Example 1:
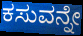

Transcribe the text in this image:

ಕಸುವನ್ನೇ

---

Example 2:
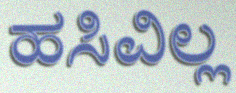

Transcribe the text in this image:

ಹಸಿವಿಲ್ಲ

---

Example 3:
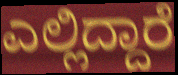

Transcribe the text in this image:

ಎಲ್ಲಿದ್ದಾರೆ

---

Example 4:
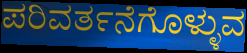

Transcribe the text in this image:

ಪರಿವರ್ತನೆಗೊಳ್ಳುವ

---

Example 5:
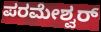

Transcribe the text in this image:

ಪರಮೇಶ್ವರ್